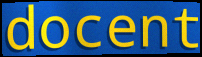
docent